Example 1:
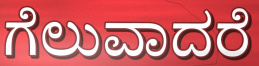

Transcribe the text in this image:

ಗೆಲುವಾದರೆ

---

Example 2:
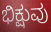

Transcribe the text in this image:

ಭಿಕ್ಷುವು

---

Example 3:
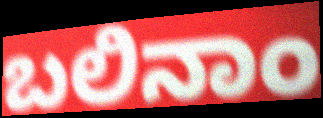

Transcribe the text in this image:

ಬಲಿನಾಂ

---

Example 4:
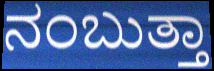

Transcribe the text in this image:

ನಂಬುತ್ತಾ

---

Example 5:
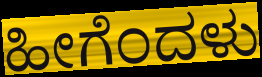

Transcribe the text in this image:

ಹೀಗೆಂದಳು